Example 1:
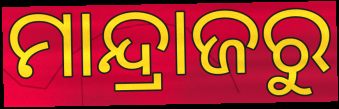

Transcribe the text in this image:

ମାନ୍ଦ୍ରାଜରୁ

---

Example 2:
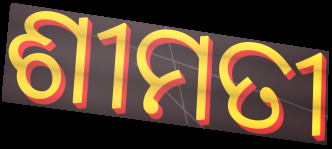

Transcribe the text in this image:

ଶୀମତୀ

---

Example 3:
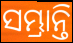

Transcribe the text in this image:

ସମ୍ଭ୍ରାନ୍ତି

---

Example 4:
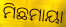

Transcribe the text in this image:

ମିଛମାୟା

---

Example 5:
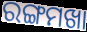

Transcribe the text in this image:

ରଙ୍ଗମଖା